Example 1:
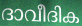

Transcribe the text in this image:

ദാവീദിക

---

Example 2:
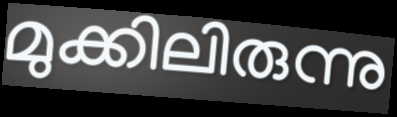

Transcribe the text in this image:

മുക്കിലിരുന്നു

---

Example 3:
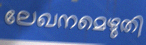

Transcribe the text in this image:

ലേഖനമെഴുതി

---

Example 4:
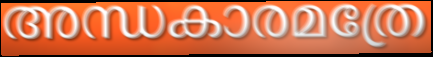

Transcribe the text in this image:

അന്ധകാരമത്രേ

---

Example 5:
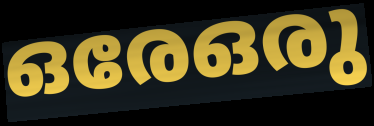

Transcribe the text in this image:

ഒരേഒരു